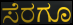
ಸೆರಗೂ